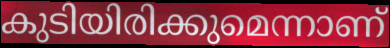
കുടിയിരിക്കുമെന്നാണ്